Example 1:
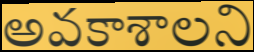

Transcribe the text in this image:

అవకాశాలని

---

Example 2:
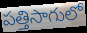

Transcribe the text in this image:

పత్తిసాగులో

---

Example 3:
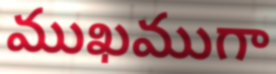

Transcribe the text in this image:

ముఖముగా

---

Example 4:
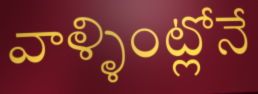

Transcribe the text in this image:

వాళ్ళింట్లోనే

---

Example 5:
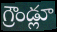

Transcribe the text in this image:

గ్రౌండ్లూ